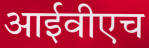
आईवीएच